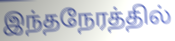
இந்தநேரத்தில்